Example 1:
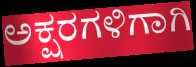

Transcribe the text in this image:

ಅಕ್ಷರಗಳಿಗಾಗಿ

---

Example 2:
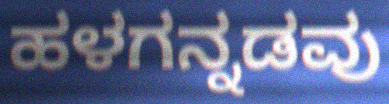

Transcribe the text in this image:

ಹಳಗನ್ನಡವು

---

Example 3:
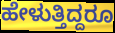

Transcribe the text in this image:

ಹೇಳುತ್ತಿದ್ದರೂ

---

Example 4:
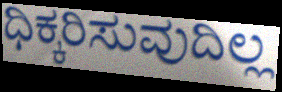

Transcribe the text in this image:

ಧಿಕ್ಕರಿಸುವುದಿಲ್ಲ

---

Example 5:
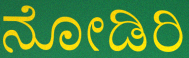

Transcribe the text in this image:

ನೋಡಿರಿ